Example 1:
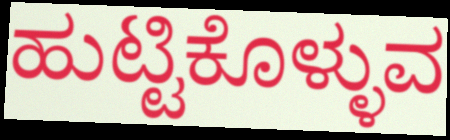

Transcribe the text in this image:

ಹುಟ್ಟಿಕೊಳ್ಳುವ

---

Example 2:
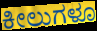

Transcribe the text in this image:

ಕೀಲುಗಳೂ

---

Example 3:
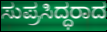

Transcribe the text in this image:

ಸುಪ್ರಸಿದ್ಧರಾದ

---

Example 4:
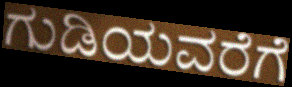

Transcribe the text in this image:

ಗುಡಿಯವರೆಗೆ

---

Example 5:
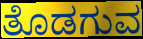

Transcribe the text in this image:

ತೊಡಗುವ